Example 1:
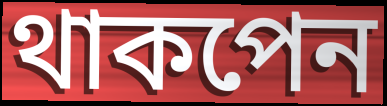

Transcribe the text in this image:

থাকপেন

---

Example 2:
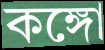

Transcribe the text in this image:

কঙ্গো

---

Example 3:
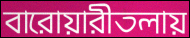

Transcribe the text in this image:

বারোয়ারীতলায়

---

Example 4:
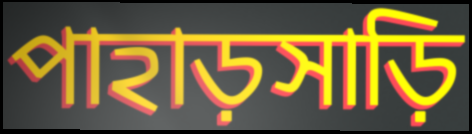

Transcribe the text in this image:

পাহাড়সাড়ি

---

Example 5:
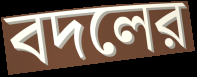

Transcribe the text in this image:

বদলের